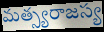
మత్స్యరాజస్య